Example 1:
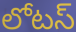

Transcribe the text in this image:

లోటస్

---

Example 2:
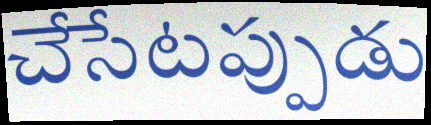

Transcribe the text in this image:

చేసేటప్పుడు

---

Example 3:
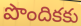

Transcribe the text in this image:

పొందికకు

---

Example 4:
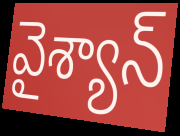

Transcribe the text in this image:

వైశ్యాన్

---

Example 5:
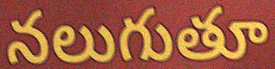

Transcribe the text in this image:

నలుగుతూ